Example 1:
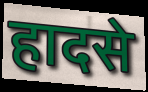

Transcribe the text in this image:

हादसे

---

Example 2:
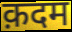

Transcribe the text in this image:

क़दम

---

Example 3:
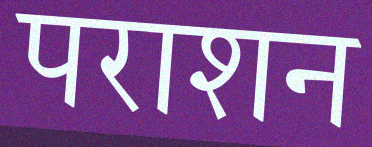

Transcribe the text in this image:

पराशन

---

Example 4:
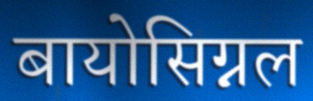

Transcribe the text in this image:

बायोसिग्नल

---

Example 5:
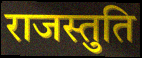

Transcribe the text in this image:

राजस्तुति